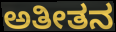
ಅತೀತನ